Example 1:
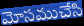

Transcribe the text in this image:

మోసముచేసి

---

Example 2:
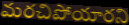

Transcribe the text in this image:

మరచిపోయారని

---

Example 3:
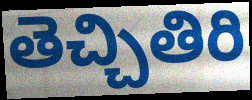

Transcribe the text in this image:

తెచ్చితిరి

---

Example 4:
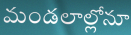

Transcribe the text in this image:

మండలాల్లోనూ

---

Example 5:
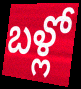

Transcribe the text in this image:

బళ్లో